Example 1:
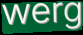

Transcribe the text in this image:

werg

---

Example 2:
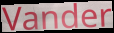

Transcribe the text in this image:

Vander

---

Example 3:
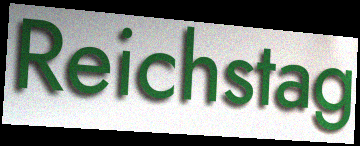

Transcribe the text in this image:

Reichstag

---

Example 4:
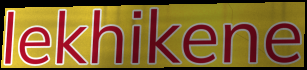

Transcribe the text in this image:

lekhikene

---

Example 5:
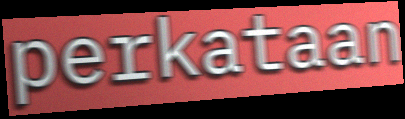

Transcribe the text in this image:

perkataan